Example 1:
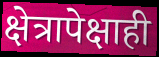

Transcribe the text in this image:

क्षेत्रापेक्षाही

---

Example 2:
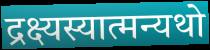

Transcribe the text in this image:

द्रक्ष्यस्यात्मन्यथो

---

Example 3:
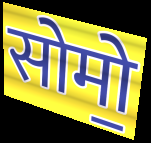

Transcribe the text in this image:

सोमो॒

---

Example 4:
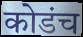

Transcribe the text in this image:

कोडंच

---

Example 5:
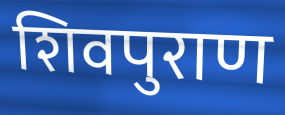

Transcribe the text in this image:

शिवपुराण